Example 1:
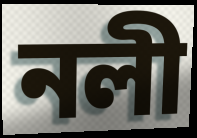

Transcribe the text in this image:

নলী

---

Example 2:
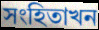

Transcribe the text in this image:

সংহিতাখন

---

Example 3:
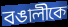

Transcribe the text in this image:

বঙালীকে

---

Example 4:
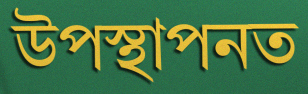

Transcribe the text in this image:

উপস্থাপনত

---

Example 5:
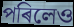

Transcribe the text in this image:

পৰিলেও